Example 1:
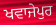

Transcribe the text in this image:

ਖਵਾਜੇਪੁਰ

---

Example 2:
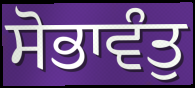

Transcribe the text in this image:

ਸੋਭਾਵੰਤੁ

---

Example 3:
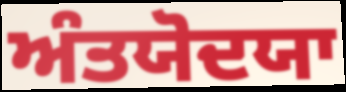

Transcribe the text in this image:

ਅੰਤਯੋਦਯਾ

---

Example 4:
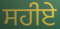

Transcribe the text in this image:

ਸਹੀਏ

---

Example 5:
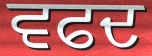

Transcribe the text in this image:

ਵਫਦ